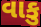
વાકુ